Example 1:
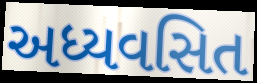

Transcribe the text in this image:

અધ્યવસિત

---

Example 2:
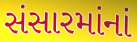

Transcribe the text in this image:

સંસારમાંનાં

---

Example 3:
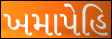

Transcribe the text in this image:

ખમાપેહિ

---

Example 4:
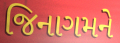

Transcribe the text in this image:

જિનાગમને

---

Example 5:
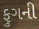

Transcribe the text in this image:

ફુગની